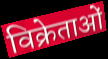
विक्रेताओं